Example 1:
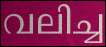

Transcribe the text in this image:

വലിച്ച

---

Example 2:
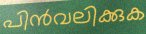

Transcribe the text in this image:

പിൻവലിക്കുക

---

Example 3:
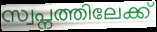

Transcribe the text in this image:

സ്വപ്നത്തിലേക്ക്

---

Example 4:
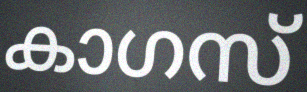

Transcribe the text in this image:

കാഗസ്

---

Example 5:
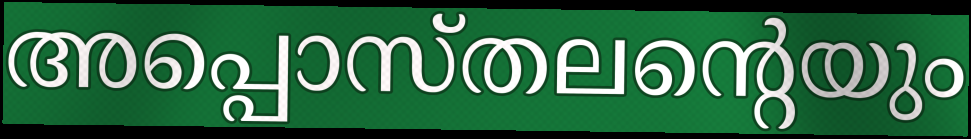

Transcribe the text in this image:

അപ്പൊസ്തലന്റെയും